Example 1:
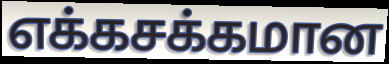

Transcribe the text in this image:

எக்கசக்கமான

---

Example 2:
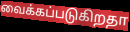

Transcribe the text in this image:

வைக்கப்படுகிறதா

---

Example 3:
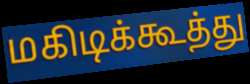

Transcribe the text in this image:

மகிடிக்கூத்து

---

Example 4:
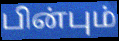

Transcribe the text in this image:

பின்பும்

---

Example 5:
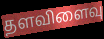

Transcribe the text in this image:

தளவிளைவு